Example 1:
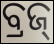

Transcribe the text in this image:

ବ୍ରଜ୍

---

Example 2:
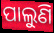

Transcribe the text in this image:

ପାଲୁଣି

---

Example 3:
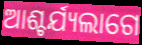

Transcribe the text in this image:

ଆଶ୍ଚର୍ଯ୍ୟଲାଗେ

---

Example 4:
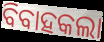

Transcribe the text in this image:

ବିବାହକଲା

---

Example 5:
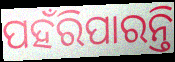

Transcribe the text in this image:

ପହଁରିପାରନ୍ତି